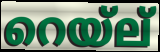
റെയ്ല്